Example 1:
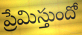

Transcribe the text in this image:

ప్రేమిస్తుందో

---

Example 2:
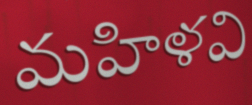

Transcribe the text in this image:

మహిళవి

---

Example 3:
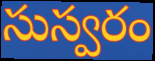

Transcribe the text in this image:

సుస్వరం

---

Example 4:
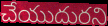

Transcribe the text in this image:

చేయుదురని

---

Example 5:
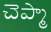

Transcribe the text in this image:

చెప్మా